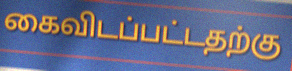
கைவிடப்பட்டதற்கு